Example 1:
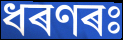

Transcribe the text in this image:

ধৰণৰঃ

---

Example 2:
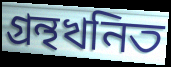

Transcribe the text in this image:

গ্ৰন্থখনিত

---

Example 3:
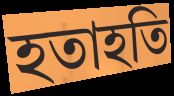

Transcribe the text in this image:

হতাহতি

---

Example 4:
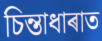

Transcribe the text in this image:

চিন্তাধাৰাত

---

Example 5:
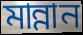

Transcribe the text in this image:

মান্নান